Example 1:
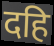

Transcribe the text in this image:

दहि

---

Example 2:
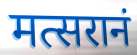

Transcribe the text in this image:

मत्सरानं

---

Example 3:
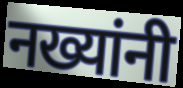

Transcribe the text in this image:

नख्यांनी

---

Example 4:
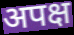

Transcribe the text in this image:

अपक्ष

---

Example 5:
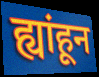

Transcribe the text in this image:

ह्यांहून